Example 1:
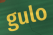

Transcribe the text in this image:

gulo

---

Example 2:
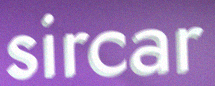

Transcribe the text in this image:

sircar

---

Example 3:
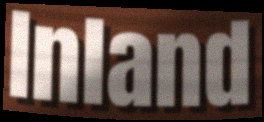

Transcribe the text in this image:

Inland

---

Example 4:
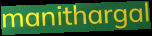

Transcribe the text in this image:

manithargal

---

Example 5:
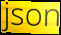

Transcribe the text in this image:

json